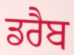
ਡਰੈਬ